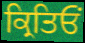
ਕ੍ਰਿਤਿਓਂ